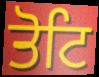
ਤੋਟਿ